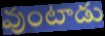
వుంటాడు